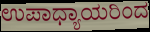
ಉಪಾಧ್ಯಾಯರಿಂದ